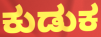
ಕುಡುಕ